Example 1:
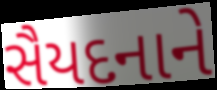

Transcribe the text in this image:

સૈયદનાને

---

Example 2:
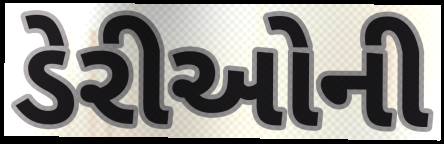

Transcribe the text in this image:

ડેરીઓની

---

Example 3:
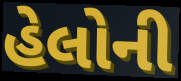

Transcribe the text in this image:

હેલોની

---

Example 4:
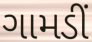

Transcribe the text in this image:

ગામડીં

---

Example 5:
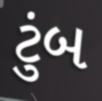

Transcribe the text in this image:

ટુંબ